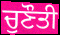
ਚੁਣੌਤੀ